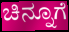
ಚಿನ್ನೂಗೆ